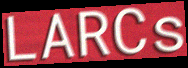
LARCs